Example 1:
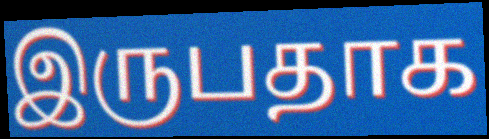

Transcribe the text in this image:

இருபதாக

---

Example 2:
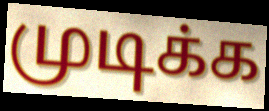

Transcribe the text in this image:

முடிக்க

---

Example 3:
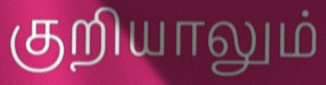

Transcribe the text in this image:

குறியாலும்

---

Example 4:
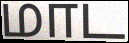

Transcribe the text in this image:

மாட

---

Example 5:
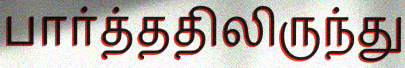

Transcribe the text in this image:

பார்த்ததிலிருந்து